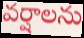
వర్షాలను